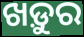
ଖଡ଼ୁର